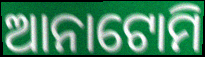
ଆନାଟୋମି